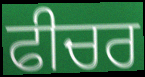
ਫੀਚਰ